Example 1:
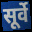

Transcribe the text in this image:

सूर्वे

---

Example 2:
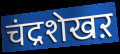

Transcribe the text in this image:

चंद्रशेखऱ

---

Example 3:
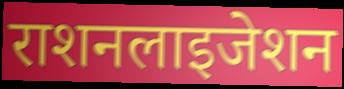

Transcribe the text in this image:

राशनलाइजेशन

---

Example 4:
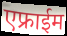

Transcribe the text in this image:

एफ्राईम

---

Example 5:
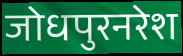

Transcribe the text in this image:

जोधपुरनरेश